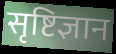
सृष्टिज्ञान